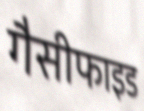
गैसीफाइड